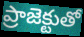
ప్రాజెక్టుతో